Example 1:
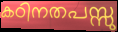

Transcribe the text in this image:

കഠിനതപസ്സു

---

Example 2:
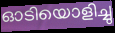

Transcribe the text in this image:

ഓടിയൊളിച്ചു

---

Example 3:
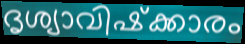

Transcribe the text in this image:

ദൃശ്യാവിഷ്‌ക്കാരം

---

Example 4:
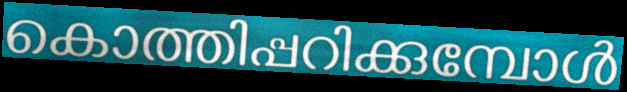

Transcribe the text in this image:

കൊത്തിപ്പറിക്കുമ്പോൾ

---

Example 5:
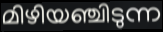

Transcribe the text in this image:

മിഴിയഞ്ചിടുന്ന